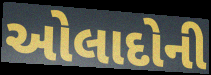
ઓલાદોની